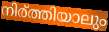
നിര്ത്തിയാലും